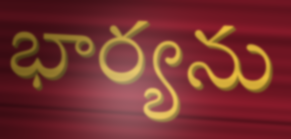
భార్యను